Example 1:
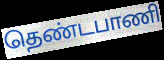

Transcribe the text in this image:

தெண்டபாணி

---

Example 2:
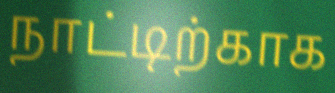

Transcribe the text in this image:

நாட்டிற்காக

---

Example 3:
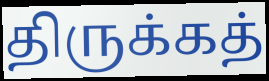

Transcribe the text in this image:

திருக்கத்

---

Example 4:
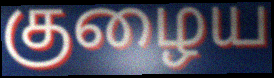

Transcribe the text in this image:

குழைய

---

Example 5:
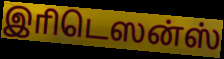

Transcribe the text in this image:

இரிடெஸன்ஸ்